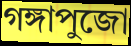
গঙ্গাপুজো